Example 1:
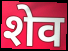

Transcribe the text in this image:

शेव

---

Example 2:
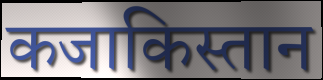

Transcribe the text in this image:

कजाकिस्तान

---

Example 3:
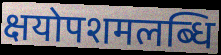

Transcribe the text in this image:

क्षयोपशमलब्धि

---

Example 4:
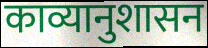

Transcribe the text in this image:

काव्यानुशासन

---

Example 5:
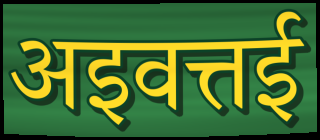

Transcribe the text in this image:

अइवत्तई